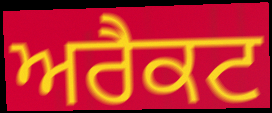
ਅਰੈਕਟ